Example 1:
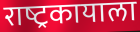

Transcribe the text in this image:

राष्ट्रकायाला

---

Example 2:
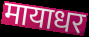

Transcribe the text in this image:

मायाधर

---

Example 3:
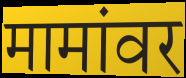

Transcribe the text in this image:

मामांवर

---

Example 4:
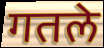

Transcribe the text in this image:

गतले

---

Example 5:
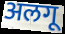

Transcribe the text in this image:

अलगू